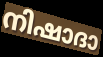
നിഷാദാ